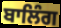
ਬਾਲਿੰਗ